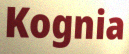
Kognia